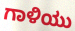
ಗಾಳಿಯು